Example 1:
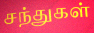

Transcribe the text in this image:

சந்துகள்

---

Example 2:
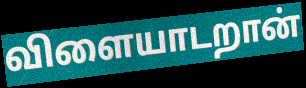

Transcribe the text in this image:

விளையாடறான்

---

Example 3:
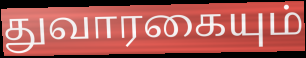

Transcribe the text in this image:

துவாரகையும்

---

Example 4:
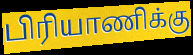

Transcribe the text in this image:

பிரியாணிக்கு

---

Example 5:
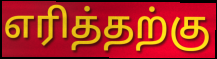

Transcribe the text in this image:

எரித்தற்கு